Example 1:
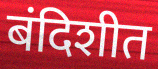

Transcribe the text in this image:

बंदिशीत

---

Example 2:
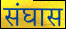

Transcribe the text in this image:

संघास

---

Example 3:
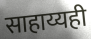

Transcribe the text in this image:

साहाय्यही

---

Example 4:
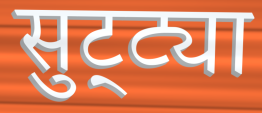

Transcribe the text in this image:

सुट्‌ट्या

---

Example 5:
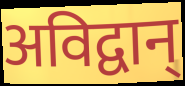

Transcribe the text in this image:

अविद्वान्